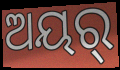
ଅୟର୍